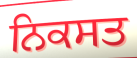
ਨਿਕਸਤ